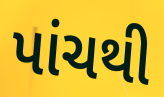
પાંચથી